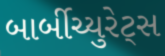
બાર્બીચ્યુરેટ્સ